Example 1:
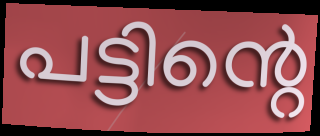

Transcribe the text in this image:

പട്ടിന്റെ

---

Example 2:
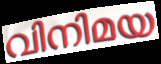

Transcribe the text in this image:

വിനിമയ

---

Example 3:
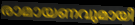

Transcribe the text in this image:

രാമായണവുമായി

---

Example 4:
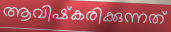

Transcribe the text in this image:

ആവിഷ്‌കരിക്കുന്നത്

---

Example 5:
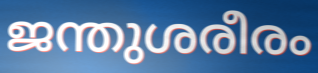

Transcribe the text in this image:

ജന്തുശരീരം